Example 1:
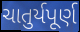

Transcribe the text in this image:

ચાતુર્યપૂર્ણ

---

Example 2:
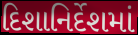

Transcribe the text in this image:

દિશાનિર્દેશમાં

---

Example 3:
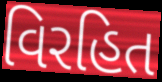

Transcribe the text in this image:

વિરહિત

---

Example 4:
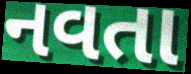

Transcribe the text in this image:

નવતા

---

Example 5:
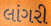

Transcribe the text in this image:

લાંગરી